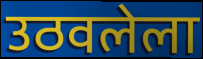
उठवलेला